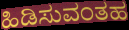
ಹಿಡಿಸುವಂತಹ